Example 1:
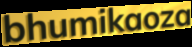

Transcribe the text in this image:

bhumikaoza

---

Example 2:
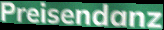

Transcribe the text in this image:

Preisendanz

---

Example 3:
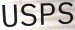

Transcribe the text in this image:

USPS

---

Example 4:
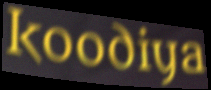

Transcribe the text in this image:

koodiya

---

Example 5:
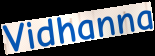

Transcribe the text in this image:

Vidhanna